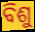
ବିଶୁ